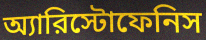
অ্যারিস্টোফেনিস